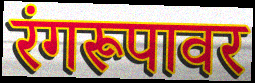
रंगरूपावर